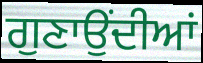
ਗੁਣਾਉਂਦੀਆਂ